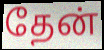
தேன்